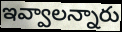
ఇవ్వాలన్నారు